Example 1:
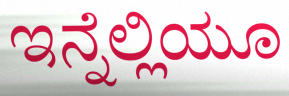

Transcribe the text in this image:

ಇನ್ನೆಲ್ಲಿಯೂ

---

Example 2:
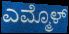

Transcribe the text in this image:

ಎಮ್ಮೊಳ್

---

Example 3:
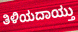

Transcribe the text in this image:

ತಿಳಿಯದಾಯ್ತು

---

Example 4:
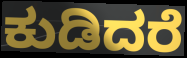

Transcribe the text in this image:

ಕುಡಿದರೆ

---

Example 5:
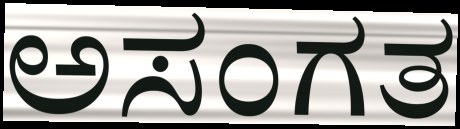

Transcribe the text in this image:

ಅಸಂಗತ